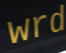
wrd